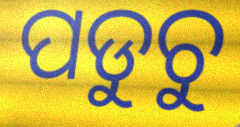
ପଡୁଚୁ